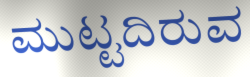
ಮುಟ್ಟದಿರುವ